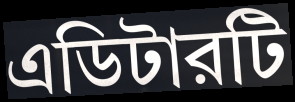
এডিটারটি